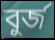
বুর্জ